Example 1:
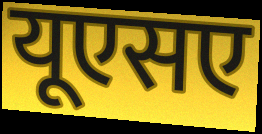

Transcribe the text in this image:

यूएसए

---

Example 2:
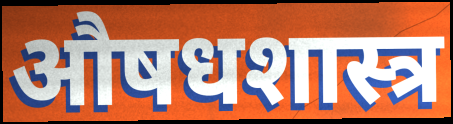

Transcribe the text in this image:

औषधशास्त्र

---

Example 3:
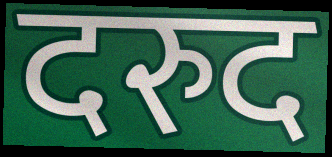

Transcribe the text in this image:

दरुद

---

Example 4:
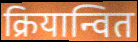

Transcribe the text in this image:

क्रियान्वित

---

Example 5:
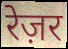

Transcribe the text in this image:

रेज़र